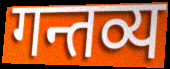
गन्तव्य